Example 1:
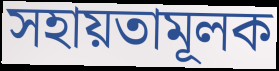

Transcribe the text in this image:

সহায়তামূলক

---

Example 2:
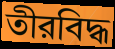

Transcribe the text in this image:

তীরবিদ্ধ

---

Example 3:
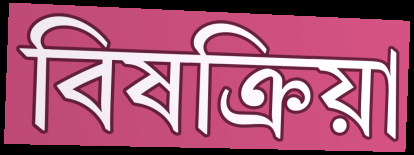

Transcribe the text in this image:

বিষক্রিয়া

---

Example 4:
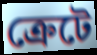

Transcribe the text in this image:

ক্রেটে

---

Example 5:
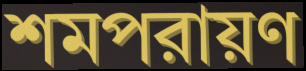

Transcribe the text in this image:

শমপরায়ণ